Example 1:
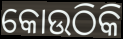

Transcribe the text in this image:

କୋଉଠିକି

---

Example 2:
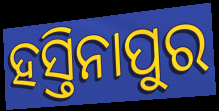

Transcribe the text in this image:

ହସ୍ତିନାପୁର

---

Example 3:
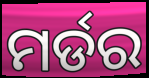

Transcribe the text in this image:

ମର୍ଡର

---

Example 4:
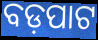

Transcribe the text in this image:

ବଡ଼ପାଟ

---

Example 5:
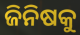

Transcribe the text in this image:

ଜିନିଷକୁ